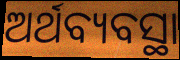
ଅର୍ଥବ୍ୟବସ୍ଥା